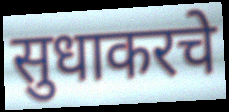
सुधाकरचे